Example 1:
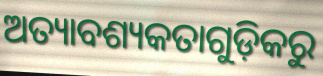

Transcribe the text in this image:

ଅତ୍ୟାବଶ୍ୟକତାଗୁଡ଼ିକରୁ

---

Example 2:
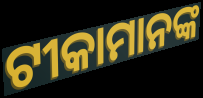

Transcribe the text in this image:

ଟୀକାମାନଙ୍କ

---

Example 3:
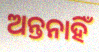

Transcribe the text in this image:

ଅନ୍ତନାହିଁ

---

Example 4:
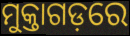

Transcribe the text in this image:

ମୁକ୍ତାଗଡ଼ରେ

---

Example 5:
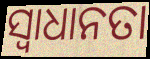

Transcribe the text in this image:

ସ୍ୱାଧାନତା